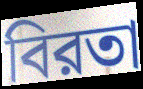
বিরতা